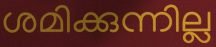
ശമിക്കുന്നില്ല